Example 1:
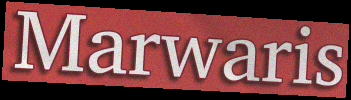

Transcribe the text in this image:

Marwaris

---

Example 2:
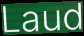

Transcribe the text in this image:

Laud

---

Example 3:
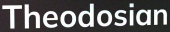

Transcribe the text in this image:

Theodosian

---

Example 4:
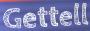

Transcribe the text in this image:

Gettell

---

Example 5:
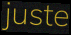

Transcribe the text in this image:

juste